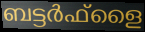
ബട്ടർഫ്ളൈ